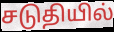
சடுதியில்